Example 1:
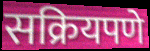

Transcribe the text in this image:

सक्रियपणे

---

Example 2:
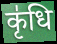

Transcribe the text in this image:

कृ॑धि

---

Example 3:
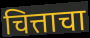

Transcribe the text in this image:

चित्ताचा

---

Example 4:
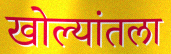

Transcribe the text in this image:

खोल्यांतला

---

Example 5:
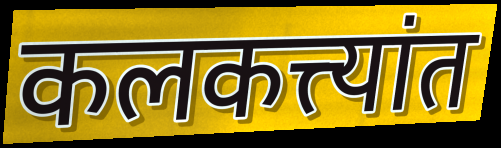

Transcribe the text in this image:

कलकत्त्यांत